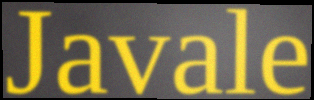
Javale